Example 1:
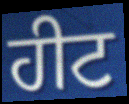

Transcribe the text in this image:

ਹੀਟ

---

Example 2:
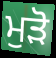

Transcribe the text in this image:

ਮੁਡ਼ੋ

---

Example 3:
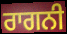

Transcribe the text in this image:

ਰਾਗਨੀ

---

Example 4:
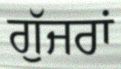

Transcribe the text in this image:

ਗੁੱਜਰਾਂ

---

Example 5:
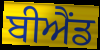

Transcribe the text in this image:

ਬੀਐਂਡ